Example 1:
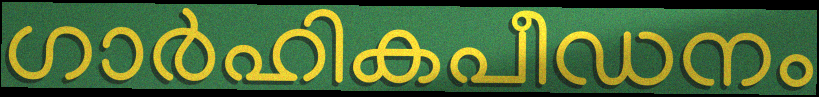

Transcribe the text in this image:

ഗാർഹികപീഡനം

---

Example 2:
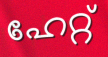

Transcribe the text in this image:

ഹേറ്റ്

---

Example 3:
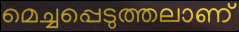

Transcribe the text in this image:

മെച്ചപ്പെടുത്തലാണ്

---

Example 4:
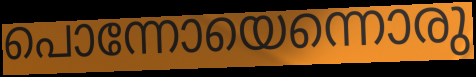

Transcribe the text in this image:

പൊന്നോയെന്നൊരു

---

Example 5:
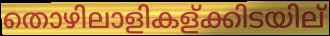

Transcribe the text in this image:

തൊഴിലാളികള്ക്കിടയില്